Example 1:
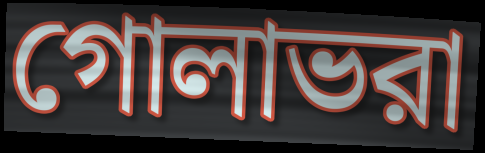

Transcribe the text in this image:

গোলাভরা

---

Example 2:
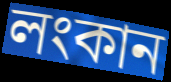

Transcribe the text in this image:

লংকান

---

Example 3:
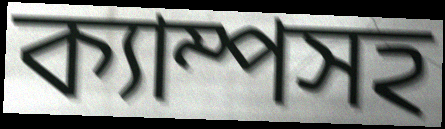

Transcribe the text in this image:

ক্যাম্পসহ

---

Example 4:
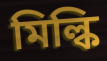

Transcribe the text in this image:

মিল্কি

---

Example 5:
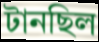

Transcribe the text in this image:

টানছিল